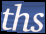
ths